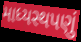
માધ્યસ્થપણું